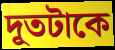
দূতটাকে